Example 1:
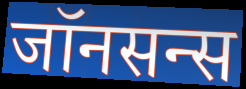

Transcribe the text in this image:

जॉनसन्स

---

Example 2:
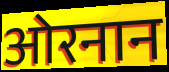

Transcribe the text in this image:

ओरनान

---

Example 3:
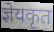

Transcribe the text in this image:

ज्ञेयकृत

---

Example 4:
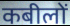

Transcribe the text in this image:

कबीलों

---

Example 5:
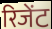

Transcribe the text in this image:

रिजेंट